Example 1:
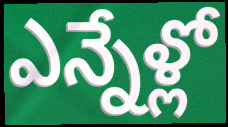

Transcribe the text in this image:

ఎన్నేళ్లో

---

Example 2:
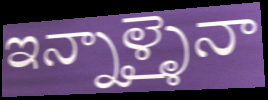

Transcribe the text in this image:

ఇన్నాళ్ళైనా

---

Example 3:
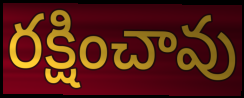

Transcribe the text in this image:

రక్షించావు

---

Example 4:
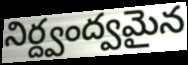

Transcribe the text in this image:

నిర్ద్వంద్వమైన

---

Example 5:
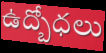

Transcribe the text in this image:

ఉద్బోధలు